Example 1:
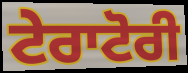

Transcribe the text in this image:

ਟੇਰਾਟੋਰੀ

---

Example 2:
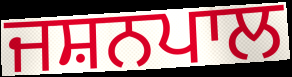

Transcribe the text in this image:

ਜਸ਼ਨਪਾਲ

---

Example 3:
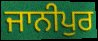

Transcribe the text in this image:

ਜਾਨੀਪੁਰ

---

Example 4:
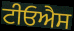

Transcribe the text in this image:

ਟੀਓਐਸ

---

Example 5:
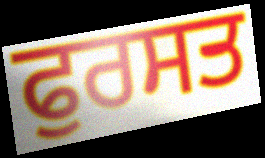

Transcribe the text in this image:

ਫੁਰਸਤ